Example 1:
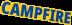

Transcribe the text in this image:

CAMPFIRE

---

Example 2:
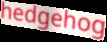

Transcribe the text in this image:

hedgehog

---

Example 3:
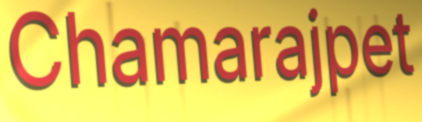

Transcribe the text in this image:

Chamarajpet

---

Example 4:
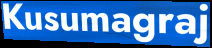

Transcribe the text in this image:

Kusumagraj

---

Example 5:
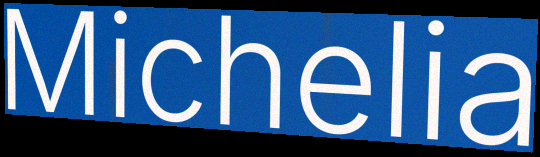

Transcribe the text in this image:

Michelia